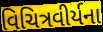
વિચિત્રવીર્યના